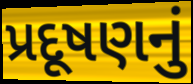
પ્રદૂષણનું